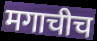
मगाचीच